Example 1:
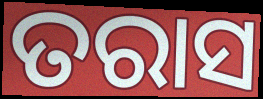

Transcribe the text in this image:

ତରାସ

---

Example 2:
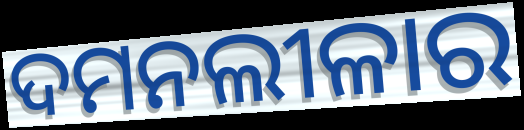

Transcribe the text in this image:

ଦମନଲୀଳାର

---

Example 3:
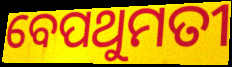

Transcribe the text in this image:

ବେପଥୁମତୀ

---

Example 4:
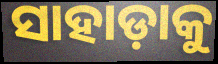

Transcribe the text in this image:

ସାହାଡ଼ାକୁ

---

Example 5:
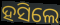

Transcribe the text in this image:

ହସିଲେ